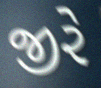
જીરે